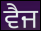
ਵੈਜ